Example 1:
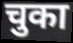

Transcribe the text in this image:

चुका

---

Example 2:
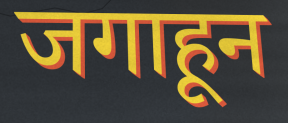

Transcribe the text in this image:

जगाहून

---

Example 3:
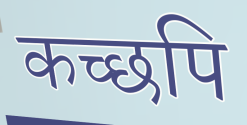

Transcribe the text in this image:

कच्छपि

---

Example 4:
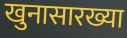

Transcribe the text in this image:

खुनासारख्या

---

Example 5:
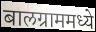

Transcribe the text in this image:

बालग्राममध्ये